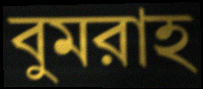
বুমরাহ